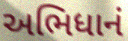
અભિધાનં